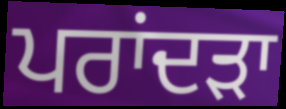
ਪਰਾਂਦੜਾ